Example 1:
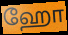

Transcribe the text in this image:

ஹோ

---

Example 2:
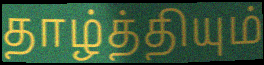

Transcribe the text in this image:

தாழ்த்தியும்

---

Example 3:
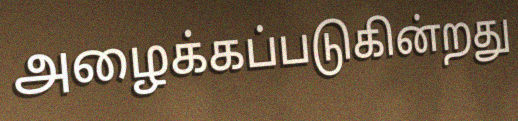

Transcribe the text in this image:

அழைக்கப்படுகின்றது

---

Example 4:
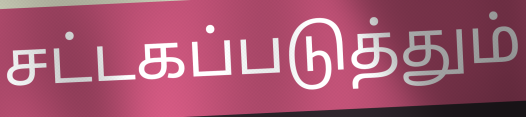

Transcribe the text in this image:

சட்டகப்படுத்தும்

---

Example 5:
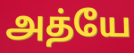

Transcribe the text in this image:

அத்யே